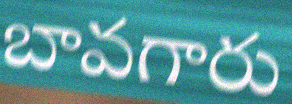
బావగారు